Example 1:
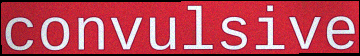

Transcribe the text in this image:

convulsive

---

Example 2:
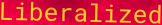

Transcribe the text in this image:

Liberalized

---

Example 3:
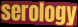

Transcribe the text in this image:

serology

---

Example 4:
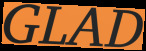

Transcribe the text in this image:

GLAD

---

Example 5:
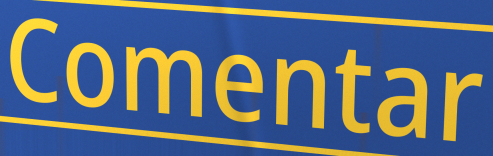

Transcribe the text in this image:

Comentar